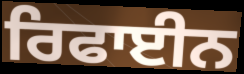
ਰਿਫਾਈਨ